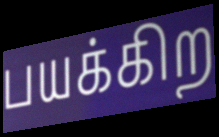
பயக்கிற